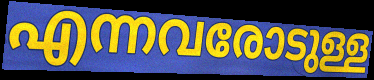
എന്നവരോടുള്ള